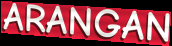
ARANGAN